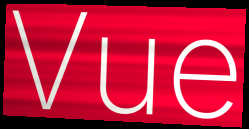
Vue